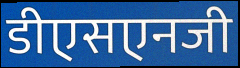
डीएसएनजी